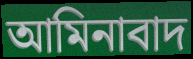
আমিনাবাদ